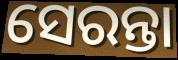
ସେରନ୍ତା